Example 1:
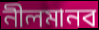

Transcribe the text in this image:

নীলমানব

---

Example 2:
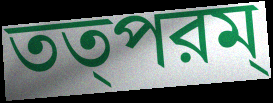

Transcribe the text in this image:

তত্পরম্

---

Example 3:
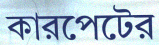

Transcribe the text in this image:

কারপেটের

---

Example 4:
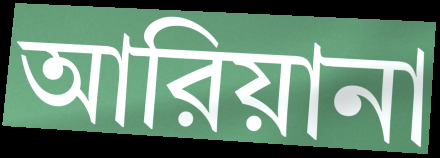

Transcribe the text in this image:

আরিয়ানা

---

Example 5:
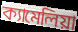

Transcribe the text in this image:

ক্যামেলিয়া